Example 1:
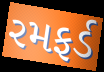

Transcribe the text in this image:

રમફર્ડ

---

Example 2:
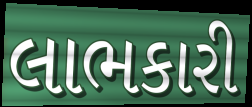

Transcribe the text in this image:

લાભકારી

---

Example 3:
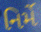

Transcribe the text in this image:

નિર્મે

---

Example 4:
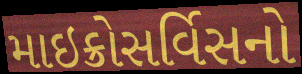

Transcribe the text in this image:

માઇક્રોસર્વિસનો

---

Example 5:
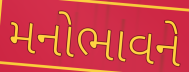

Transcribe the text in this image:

મનોભાવને